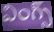
వింగ్స్